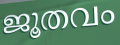
ജൂതവം